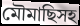
মৌমাছিসহ